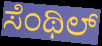
ಸೆಂಥಿಲ್